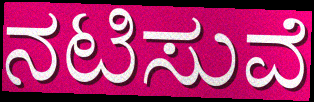
ನಟಿಸುವೆ